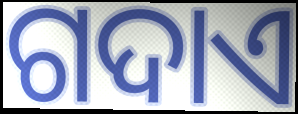
ଗଦାଏ